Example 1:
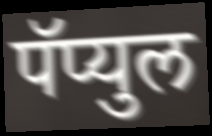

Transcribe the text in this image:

पॅप्युल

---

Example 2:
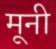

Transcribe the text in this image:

मूनी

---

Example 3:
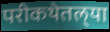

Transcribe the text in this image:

परीकथेतल्या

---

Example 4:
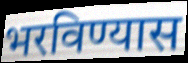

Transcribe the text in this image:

भरविण्यास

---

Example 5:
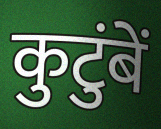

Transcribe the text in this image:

कुटुंबें